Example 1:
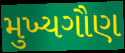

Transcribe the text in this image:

મુખ્યગૌણ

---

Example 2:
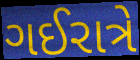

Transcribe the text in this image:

ગઈરાત્રે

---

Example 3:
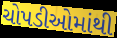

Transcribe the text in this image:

ચોપડીઓમાંથી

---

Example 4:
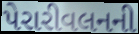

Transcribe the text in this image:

પેરારીવલનની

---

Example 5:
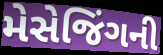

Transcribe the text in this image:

મેસેજિંગની